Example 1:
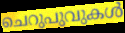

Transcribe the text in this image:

ചെറുപുവുകൾ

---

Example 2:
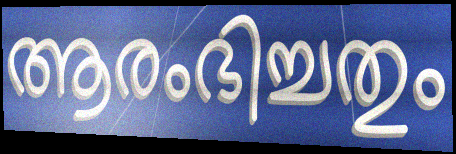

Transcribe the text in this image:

ആരംഭിച്ചതും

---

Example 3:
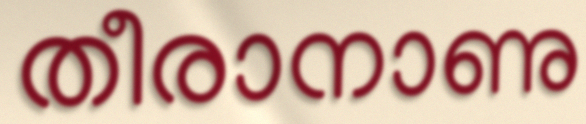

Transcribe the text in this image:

തീരാനാണു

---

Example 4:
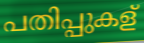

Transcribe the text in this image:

പതിപ്പുകള്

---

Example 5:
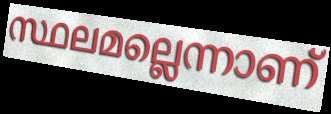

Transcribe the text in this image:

സ്ഥലമല്ലെന്നാണ്